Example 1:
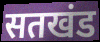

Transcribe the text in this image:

सतखंड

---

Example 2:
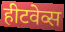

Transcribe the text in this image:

हीटवेव्स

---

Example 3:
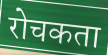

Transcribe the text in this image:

रोचकता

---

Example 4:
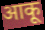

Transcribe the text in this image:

आकू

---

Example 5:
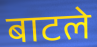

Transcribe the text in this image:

बाटले